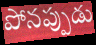
పోనప్పుడు